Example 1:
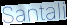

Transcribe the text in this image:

Santali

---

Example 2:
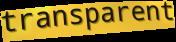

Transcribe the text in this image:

transparent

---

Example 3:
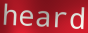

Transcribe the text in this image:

heard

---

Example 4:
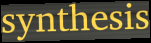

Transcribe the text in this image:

synthesis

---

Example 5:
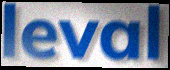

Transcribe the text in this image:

leval